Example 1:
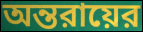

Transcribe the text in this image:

অন্তরায়ের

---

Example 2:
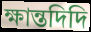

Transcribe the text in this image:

ক্ষান্তদিদি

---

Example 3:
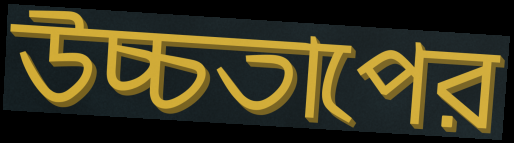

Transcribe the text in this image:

উচ্চতাপের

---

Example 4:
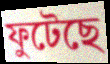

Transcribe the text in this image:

ফুটেছে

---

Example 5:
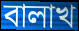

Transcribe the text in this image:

বালাখ